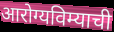
आरोग्यविम्याची